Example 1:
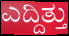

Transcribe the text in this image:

ಎದ್ದಿತ್ತು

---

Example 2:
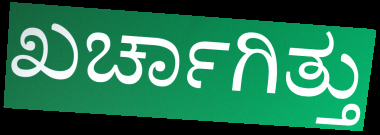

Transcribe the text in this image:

ಖರ್ಚಾಗಿತ್ತು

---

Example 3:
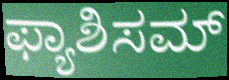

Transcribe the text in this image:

ಫ್ಯಾಶಿಸಮ್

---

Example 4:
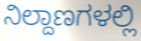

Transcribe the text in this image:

ನಿಲ್ದಾಣಗಳಲ್ಲಿ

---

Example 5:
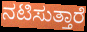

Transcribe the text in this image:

ನಟಿಸುತ್ತಾರೆ